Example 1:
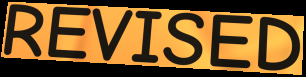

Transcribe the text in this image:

REVISED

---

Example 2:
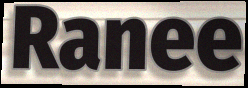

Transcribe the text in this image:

Ranee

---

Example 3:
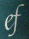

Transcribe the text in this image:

ef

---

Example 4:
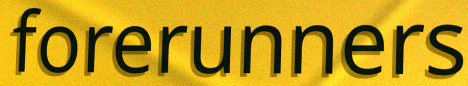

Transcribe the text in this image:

forerunners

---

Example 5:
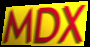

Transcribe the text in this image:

MDX